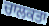
ਚਾਲਕਤਾ